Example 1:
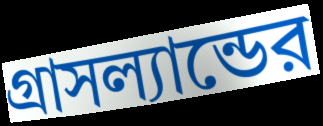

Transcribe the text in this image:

গ্রাসল্যান্ডের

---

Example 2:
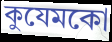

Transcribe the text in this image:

কুযেমকো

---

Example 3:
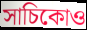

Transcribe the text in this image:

সাচিকোও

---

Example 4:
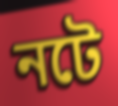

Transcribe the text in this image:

নটে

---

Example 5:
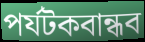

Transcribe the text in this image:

পর্যটকবান্ধব